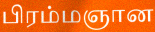
பிரம்மஞான